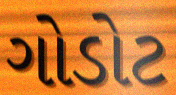
ગોડોટ